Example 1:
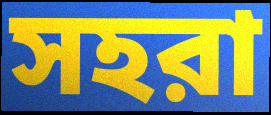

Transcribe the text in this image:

সহরা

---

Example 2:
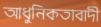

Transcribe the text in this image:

আধুনিকতাবাদী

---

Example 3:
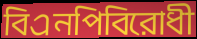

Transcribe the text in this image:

বিএনপিবিরোধী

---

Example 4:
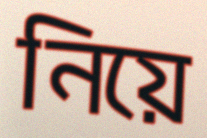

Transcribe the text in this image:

নিয়ে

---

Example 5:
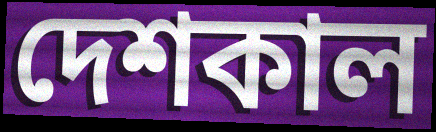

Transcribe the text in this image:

দেশকাল